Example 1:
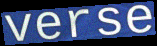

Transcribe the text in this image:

verse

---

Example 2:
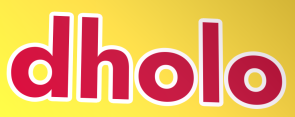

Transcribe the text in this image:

dholo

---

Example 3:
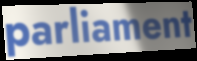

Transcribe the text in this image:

parliament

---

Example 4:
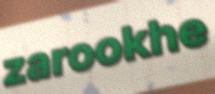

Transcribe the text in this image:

zarookhe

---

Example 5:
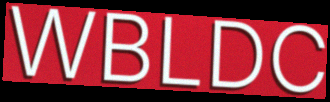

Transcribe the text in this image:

WBLDC